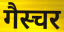
गैस्चर